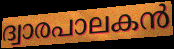
ദ്വാരപാലകൻ